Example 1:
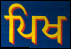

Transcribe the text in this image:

ਪਿਖ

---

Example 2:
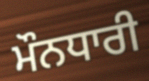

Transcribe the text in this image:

ਮੌਨਧਾਰੀ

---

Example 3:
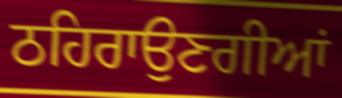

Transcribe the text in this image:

ਠਹਿਰਾਉਣਗੀਆਂ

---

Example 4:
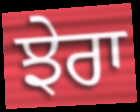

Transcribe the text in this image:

ਝੇਰਾ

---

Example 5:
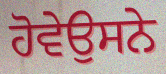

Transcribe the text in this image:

ਹੋਵੇਉਸਨੇ